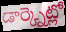
డార్క్నెట్లో